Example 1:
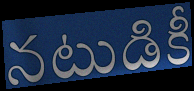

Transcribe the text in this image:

నటుడికీ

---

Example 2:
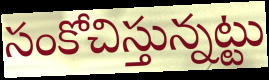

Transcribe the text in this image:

సంకోచిస్తున్నట్టు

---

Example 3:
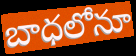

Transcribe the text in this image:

బాధలోనూ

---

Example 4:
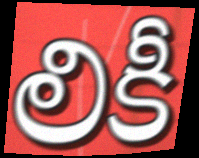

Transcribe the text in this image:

లికీ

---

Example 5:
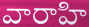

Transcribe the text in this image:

వారాహి